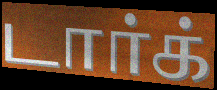
டார்க்